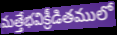
మత్తేభవిక్రీడితములో